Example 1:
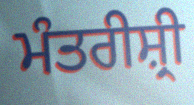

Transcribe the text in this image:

ਮੰਤਰੀਸ਼੍ਰੀ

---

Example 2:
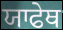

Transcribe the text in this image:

ਯਾਫੇਥ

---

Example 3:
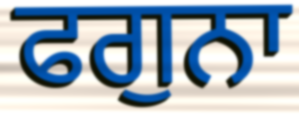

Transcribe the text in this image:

ਫਗੁਨਾ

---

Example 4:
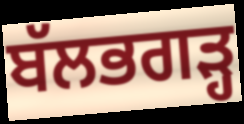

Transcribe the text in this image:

ਬੱਲਭਗੜ੍ਹ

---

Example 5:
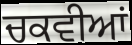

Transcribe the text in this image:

ਚਕਵੀਆਂ